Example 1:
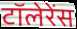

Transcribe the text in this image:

टॉलेरेंस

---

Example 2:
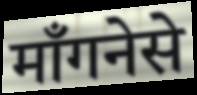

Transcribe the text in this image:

माँगनेसे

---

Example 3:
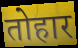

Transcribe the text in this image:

तोहार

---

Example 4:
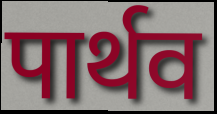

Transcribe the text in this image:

पार्थव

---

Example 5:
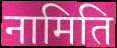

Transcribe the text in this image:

नामिति